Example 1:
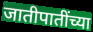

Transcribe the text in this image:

जातीपातींच्या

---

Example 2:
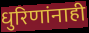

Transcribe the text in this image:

धुरिणांनाही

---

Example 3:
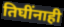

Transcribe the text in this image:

तिघींनाही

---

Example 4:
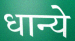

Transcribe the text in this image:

धान्ये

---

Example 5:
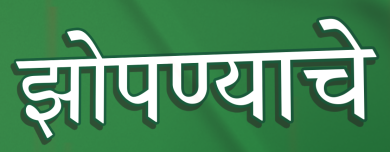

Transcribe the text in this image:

झोपण्याचे